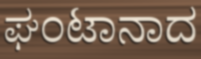
ಘಂಟಾನಾದ